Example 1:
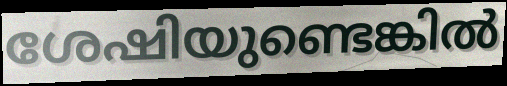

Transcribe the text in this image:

ശേഷിയുണ്ടെങ്കിൽ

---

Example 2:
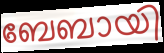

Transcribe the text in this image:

ബേബായി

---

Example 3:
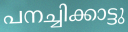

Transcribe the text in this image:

പനച്ചിക്കാട്ടു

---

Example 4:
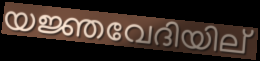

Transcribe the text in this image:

യജ്ഞവേദിയില്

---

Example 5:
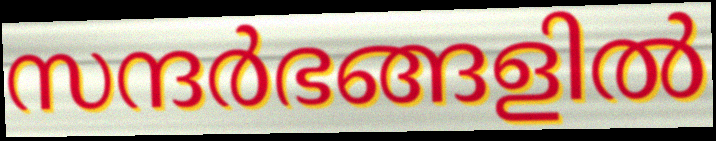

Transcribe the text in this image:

സന്ദർഭങ്ങളിൽ